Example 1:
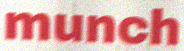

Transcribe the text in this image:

munch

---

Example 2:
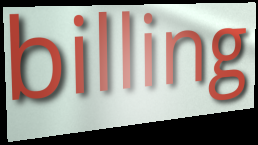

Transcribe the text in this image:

billing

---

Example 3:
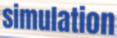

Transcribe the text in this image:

simulation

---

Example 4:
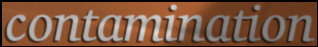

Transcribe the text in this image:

contamination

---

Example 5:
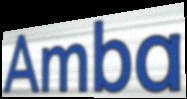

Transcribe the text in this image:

Amba